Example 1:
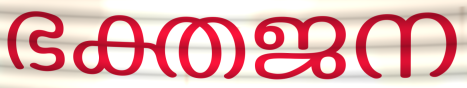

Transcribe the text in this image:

ഭക്തജന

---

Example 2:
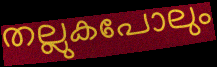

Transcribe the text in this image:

തല്ലുകപോലും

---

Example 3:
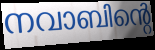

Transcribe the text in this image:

നവാബിന്റെ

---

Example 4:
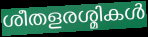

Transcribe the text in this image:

ശീതളരശ്മികൾ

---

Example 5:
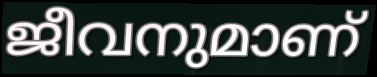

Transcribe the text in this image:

ജീവനുമാണ്